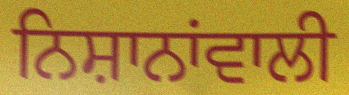
ਨਿਸ਼ਾਨਾਂਵਾਲੀ